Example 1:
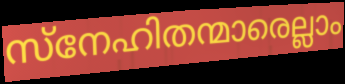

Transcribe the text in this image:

സ്നേഹിതന്മാരെല്ലാം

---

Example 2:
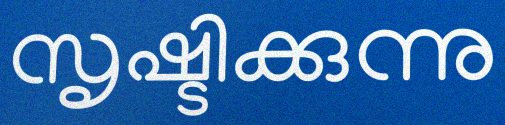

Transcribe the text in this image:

സൃഷ്ടിക്കുന്നു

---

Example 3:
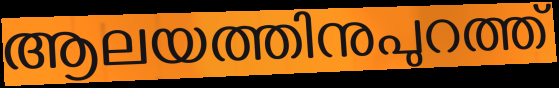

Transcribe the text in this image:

ആലയത്തിനുപുറത്ത്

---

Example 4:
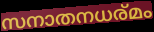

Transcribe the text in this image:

സനാതനധര്മം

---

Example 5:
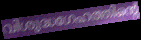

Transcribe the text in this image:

വിശുദ്ധഗേഹത്തിന്റെ